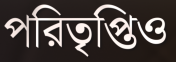
পরিতৃপ্তিও